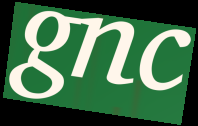
gnc